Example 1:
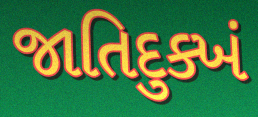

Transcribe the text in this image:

જાતિદુક્ખં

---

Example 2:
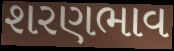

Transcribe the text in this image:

શરણભાવ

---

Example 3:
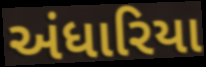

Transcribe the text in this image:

અંધારિયા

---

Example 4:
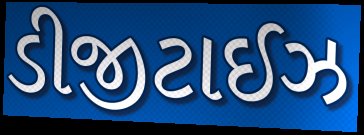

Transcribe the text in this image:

ડીજીટાઈઝ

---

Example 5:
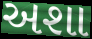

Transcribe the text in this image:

અશા